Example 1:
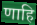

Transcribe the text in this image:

णाहि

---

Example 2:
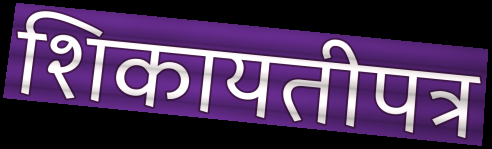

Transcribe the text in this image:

शिकायतीपत्र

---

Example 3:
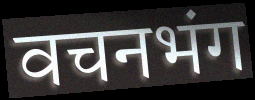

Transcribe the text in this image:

वचनभंग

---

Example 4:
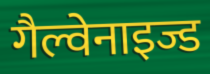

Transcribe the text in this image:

गैल्वेनाइज्ड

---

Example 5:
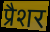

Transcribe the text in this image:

प्रैशर